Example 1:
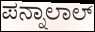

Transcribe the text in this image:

ಪನ್ನಾಲಾಲ್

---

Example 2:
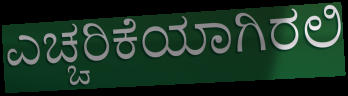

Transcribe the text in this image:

ಎಚ್ಚರಿಕೆಯಾಗಿರಲಿ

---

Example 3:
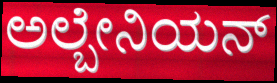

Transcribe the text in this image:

ಅಲ್ಬೇನಿಯನ್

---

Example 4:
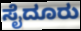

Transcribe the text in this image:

ಸೈದೂರು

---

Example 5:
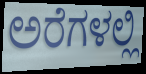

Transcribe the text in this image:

ಅರೆಗಳಲ್ಲಿ